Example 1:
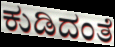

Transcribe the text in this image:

ಕುಡಿದಂತೆ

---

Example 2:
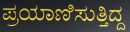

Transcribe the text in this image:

ಪ್ರಯಾಣಿಸುತ್ತಿದ್ದ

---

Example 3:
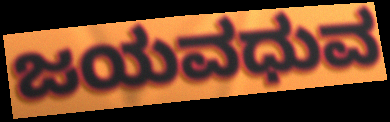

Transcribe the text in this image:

ಜಯವಧುವ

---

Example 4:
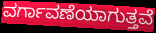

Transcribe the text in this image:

ವರ್ಗಾವಣೆಯಾಗುತ್ತವೆ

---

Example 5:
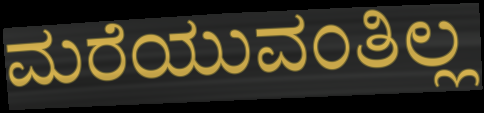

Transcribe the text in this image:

ಮರೆಯುವಂತಿಲ್ಲ